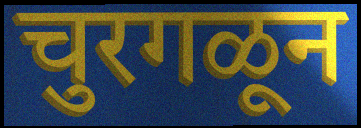
चुरगळून